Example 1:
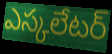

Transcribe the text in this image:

ఎస్కలేటర్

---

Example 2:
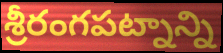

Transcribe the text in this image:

శ్రీరంగపట్నాన్ని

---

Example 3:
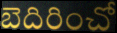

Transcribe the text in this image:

బెదిరించో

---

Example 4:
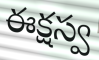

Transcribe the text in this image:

ఈక్షస్వ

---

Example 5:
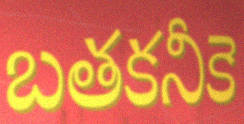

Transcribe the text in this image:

బతకనీకె